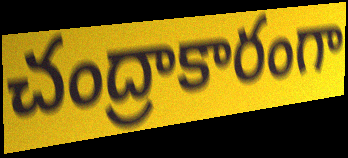
చంద్రాకారంగా